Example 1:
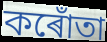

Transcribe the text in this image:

কৰোঁতা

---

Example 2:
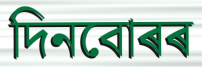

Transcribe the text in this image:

দিনবোৰৰ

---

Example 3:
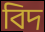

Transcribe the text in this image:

বিদ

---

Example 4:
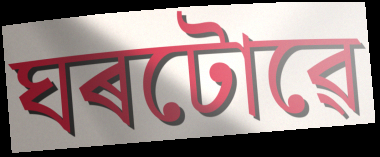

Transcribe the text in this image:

ঘৰটোৱে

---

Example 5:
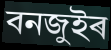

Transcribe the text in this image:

বনজুইৰ